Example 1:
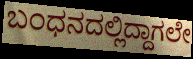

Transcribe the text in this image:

ಬಂಧನದಲ್ಲಿದ್ದಾಗಲೇ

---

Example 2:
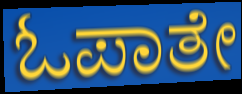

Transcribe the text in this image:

ಓಪಾತೇ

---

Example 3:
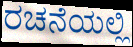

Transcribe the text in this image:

ರಚನೆಯಲ್ಲಿ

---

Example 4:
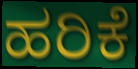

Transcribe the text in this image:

ಹರಿಕೆ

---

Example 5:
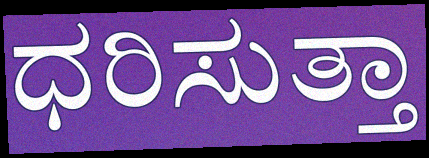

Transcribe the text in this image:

ಧರಿಸುತ್ತಾ